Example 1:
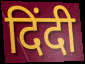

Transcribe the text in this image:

दिंदी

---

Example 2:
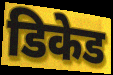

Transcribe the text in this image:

डिकेड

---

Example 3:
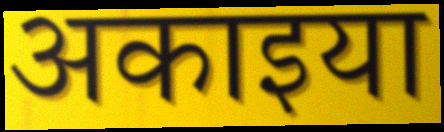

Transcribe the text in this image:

अकाइया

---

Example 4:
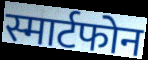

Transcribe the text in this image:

स्‍मार्टफोन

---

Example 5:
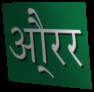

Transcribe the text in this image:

औ्रर